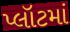
પ્લૉટમાં